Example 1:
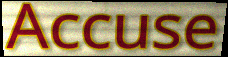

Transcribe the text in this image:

Accuse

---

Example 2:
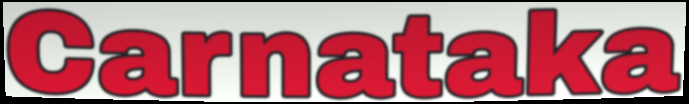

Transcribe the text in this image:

Carnataka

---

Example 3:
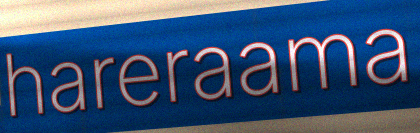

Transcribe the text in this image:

hareraama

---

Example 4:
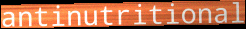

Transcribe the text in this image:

antinutritional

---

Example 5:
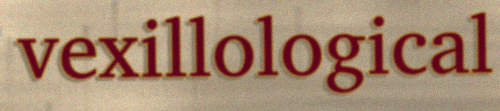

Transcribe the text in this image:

vexillological